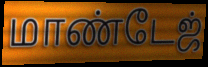
மாண்டேஜ்